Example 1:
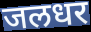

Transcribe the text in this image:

जलधर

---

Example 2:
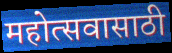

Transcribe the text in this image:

महोत्सवासाठी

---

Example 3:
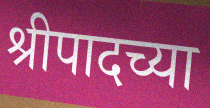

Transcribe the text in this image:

श्रीपादच्या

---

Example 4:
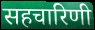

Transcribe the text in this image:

सहचारिणी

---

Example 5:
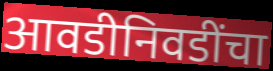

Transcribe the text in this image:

आवडीनिवडींचा